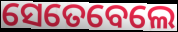
ସେତେବେଲେ